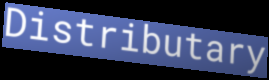
Distributary